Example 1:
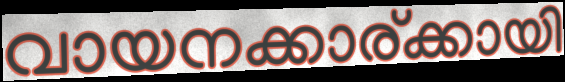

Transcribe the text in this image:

വായനക്കാര്ക്കായി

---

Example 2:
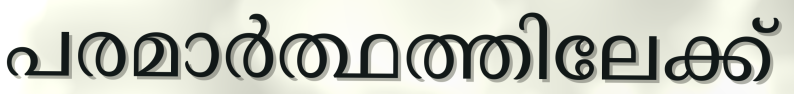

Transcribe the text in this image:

പരമാർത്ഥത്തിലേക്ക്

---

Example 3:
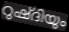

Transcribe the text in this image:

റുഷ്ദിയും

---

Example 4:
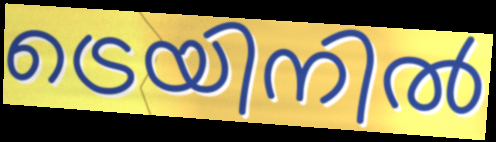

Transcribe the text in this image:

ട്രെയിനിൽ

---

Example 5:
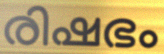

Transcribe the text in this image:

രിഷഭം